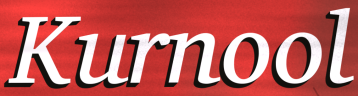
Kurnool